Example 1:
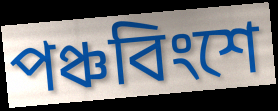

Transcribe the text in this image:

পঞ্চবিংশে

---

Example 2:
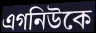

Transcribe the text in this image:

এগনিউকে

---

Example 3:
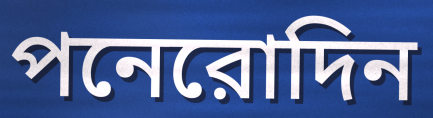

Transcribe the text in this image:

পনেরোদিন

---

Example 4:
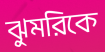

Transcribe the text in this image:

ঝুমরিকে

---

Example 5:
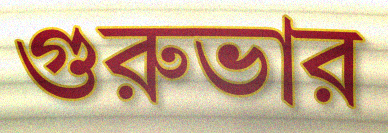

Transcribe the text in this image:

গুরুভার